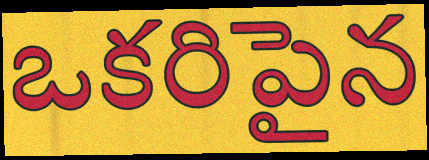
ఒకరిపైన